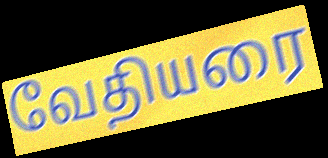
வேதியரை